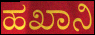
ಹಖಾನಿ